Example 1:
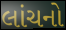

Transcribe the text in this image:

લાંચનો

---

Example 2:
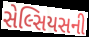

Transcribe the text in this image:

સેલ્સિયસની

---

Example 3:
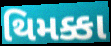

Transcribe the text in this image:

થિમક્કા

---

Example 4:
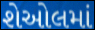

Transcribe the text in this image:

શેઓલમાં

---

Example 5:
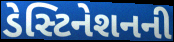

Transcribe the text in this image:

ડેસ્ટિનેશનની